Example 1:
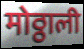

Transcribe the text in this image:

मोठ्ठाली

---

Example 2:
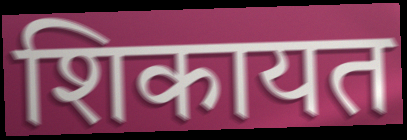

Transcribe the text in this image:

शिकायत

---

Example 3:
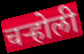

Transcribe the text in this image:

चऱ्होली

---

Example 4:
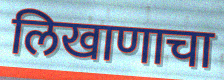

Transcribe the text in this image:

लिखाणाचा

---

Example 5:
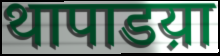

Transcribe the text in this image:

थापाडय़ा